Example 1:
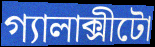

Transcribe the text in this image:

গ্যালাক্সীটো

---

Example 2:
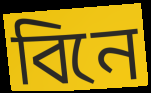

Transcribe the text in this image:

বিনে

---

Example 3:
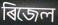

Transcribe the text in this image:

ৰিজেল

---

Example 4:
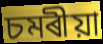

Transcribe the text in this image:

চমৰীয়া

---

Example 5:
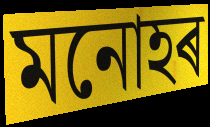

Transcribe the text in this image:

মনোহৰ